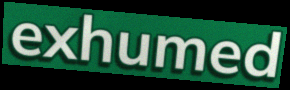
exhumed